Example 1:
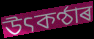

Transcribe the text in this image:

উৎকণ্ঠাৰ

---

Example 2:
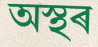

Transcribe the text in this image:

অস্থৰ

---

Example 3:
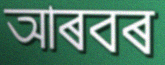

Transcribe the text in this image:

আৰবৰ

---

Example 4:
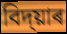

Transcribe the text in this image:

বিদ্য়াৰ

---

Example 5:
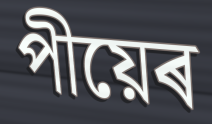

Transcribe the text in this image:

পীয়েৰ